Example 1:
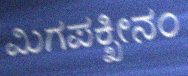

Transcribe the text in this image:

ಮಿಗಪಕ್ಖೀನಂ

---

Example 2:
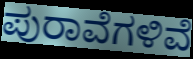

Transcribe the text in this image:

ಪುರಾವೆಗಳಿವೆ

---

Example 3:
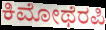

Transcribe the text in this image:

ಕಿಮೋಥೆರಪಿ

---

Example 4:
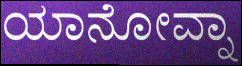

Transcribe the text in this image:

ಯಾನೋವ್ನಾ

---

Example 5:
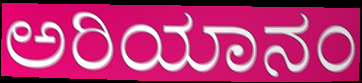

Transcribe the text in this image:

ಅರಿಯಾನಂ